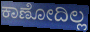
ಕಾಣೋದಿಲ್ಲ